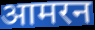
आमरन